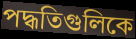
পদ্ধতিগুলিকে